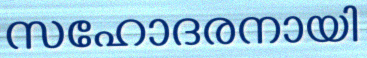
സഹോദരനായി